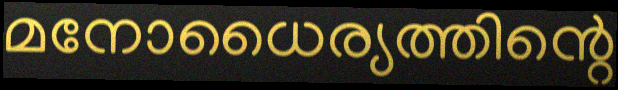
മനോധൈര്യത്തിന്റെ